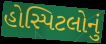
હોસ્પિટલોનું